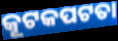
କୂଟକପଟତା